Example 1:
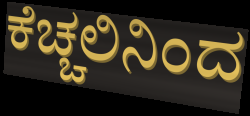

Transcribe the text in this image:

ಕೆಚ್ಚಲಿನಿಂದ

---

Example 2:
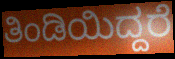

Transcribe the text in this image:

ತಿಂಡಿಯಿದ್ದರೆ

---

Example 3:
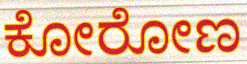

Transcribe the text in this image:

ಕೋರೋಣ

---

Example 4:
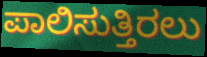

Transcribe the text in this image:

ಪಾಲಿಸುತ್ತಿರಲು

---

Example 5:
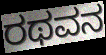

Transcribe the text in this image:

ರಥವನ